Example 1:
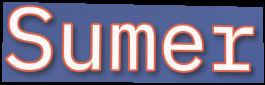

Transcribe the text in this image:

Sumer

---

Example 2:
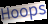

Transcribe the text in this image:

Hoops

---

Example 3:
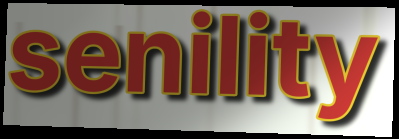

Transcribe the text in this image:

senility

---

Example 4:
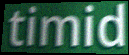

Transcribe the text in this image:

timid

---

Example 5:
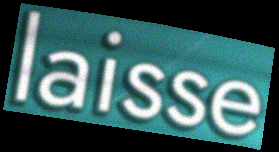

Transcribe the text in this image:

laisse